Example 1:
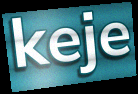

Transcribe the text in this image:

keje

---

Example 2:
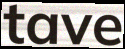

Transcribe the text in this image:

tave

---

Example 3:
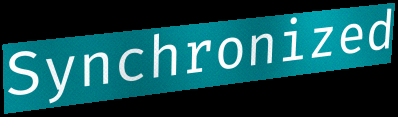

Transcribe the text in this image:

Synchronized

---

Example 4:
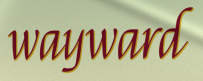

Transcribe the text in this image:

wayward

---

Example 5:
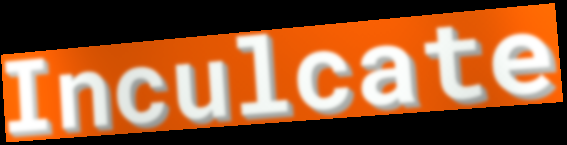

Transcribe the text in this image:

Inculcate